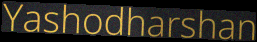
Yashodharshan